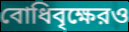
বোধিবৃক্ষেরও